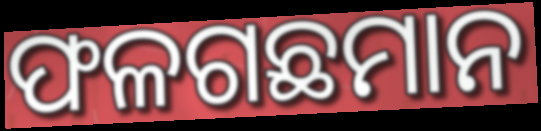
ଫଳଗଛମାନ